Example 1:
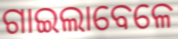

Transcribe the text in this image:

ଗାଇଲାବେଳେ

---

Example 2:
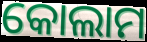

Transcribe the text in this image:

କୋଲାମ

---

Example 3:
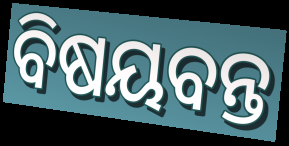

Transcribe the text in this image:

ବିଷୟବନ୍ତ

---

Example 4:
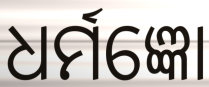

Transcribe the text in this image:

ଧର୍ମଜ୍ଞୋ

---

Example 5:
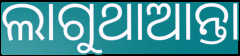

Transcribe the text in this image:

ଲାଗୁଥାଆନ୍ତା